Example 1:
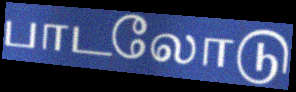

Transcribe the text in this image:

பாடலோடு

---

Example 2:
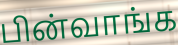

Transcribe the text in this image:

பின்வாங்க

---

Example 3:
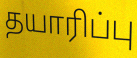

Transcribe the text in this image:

தயாரிப்பு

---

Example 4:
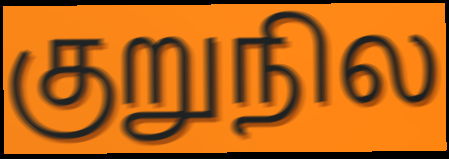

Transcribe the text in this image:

குறுநில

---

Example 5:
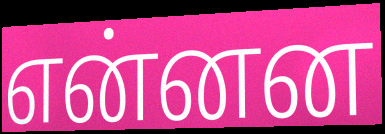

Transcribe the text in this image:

என்னன